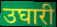
उघारी